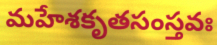
మహేశకృతసంస్తవః